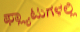
ಫ್ಲ್ಯಾಟುಗಳಲ್ಲಿ